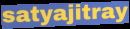
satyajitray